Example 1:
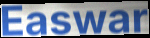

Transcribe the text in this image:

Easwar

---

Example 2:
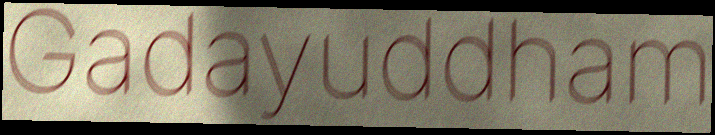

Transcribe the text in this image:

Gadayuddham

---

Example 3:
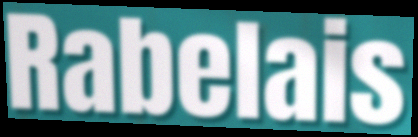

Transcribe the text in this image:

Rabelais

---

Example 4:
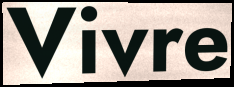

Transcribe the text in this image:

Vivre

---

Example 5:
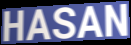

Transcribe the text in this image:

HASAN